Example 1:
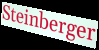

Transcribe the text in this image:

Steinberger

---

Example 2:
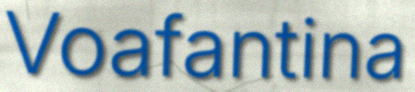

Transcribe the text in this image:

Voafantina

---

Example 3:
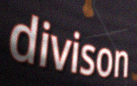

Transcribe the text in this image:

divison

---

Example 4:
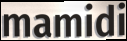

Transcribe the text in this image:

mamidi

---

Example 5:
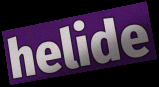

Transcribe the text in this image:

helide